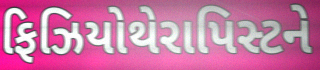
ફિઝિયોથેરાપિસ્ટને